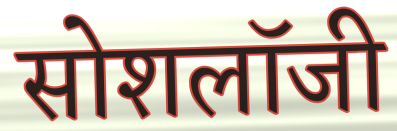
सोशलॉजी